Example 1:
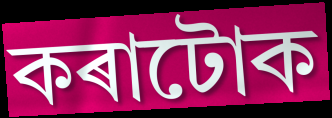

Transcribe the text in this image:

কৰাটোক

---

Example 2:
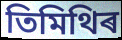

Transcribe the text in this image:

তিমিথিৰ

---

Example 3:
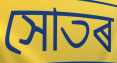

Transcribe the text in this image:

সোতৰ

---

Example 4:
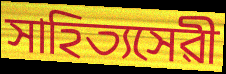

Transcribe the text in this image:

সাহিত্যসেৱী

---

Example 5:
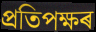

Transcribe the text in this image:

প্ৰতিপক্ষৰ